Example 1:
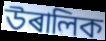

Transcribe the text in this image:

উৰালিক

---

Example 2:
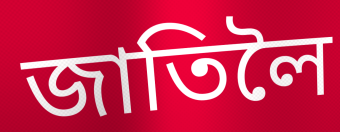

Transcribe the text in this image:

জাতিলৈ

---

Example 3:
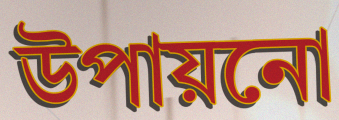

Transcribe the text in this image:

উপায়নো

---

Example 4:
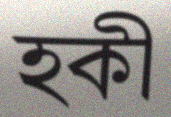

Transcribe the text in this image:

হকী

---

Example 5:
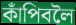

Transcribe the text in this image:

কাঁপিবলৈ